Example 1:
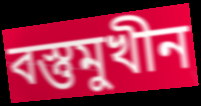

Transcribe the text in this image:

বস্তুমুখীন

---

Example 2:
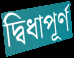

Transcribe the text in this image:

দ্বিধাপূর্ণ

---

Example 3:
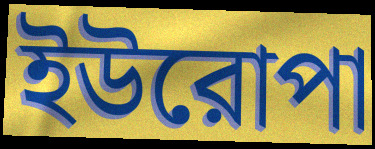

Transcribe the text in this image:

ইউরোপা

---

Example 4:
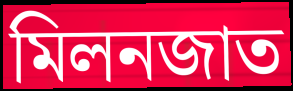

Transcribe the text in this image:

মিলনজাত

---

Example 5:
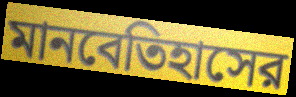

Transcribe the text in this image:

মানবেতিহাসের